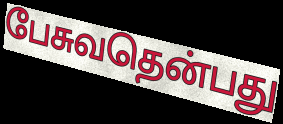
பேசுவதென்பது